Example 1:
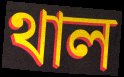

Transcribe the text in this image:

থাল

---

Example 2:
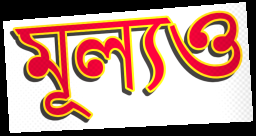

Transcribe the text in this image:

মূল্যও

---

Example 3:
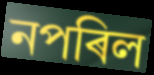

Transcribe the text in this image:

নপৰিল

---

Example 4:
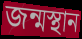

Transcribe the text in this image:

জন্মস্থান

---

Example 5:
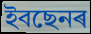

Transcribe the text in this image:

ইবছেনৰ